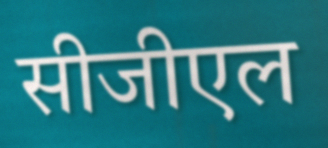
सीजीएल